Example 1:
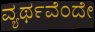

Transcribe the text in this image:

ವ್ಯರ್ಥವೆಂದೇ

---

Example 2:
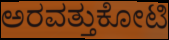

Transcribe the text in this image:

ಅರವತ್ತುಕೋಟಿ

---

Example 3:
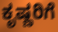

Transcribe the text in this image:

ಕೃಷ್ಣರಿಗೆ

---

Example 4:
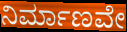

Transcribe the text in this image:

ನಿರ್ಮಾಣವೇ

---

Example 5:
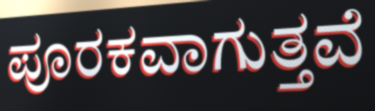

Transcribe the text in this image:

ಪೂರಕವಾಗುತ್ತವೆ